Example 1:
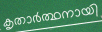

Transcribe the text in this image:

കൃതാർത്ഥനായി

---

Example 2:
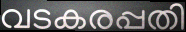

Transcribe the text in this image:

വടകരപ്പതി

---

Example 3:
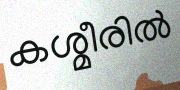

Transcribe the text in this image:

കശ്മീരിൽ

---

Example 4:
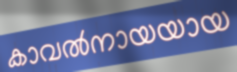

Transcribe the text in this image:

കാവൽനായയായ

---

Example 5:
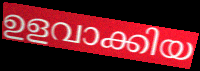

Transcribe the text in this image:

ഉളവാക്കിയ